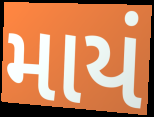
માયં